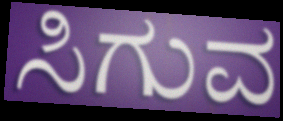
ಸಿಗುವ